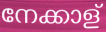
നേക്കാള്